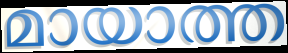
മായാത്ത